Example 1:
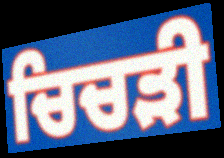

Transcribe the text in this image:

ਚਿਚੜੀ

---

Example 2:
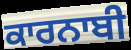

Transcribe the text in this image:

ਕਾਰਨਾਬੀ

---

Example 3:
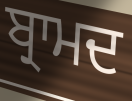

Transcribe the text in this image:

ਬ੍ਰਾਮਦ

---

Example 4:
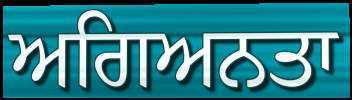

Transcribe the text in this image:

ਅਗਿਅਨਤਾ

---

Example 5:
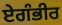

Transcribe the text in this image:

ਏਗੰਭੀਰ